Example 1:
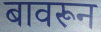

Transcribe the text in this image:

बावरून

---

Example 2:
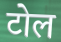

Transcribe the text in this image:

टोल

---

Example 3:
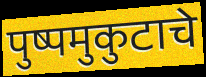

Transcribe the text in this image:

पुष्पमुकुटाचे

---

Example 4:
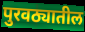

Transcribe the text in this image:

पुरवठ्यातील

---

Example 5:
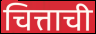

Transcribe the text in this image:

चित्ताची